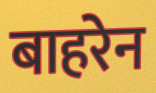
बाहरेन